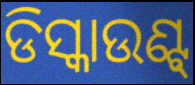
ଡିସ୍କାଉଣ୍ଟ୍